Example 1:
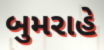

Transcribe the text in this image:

બુમરાહે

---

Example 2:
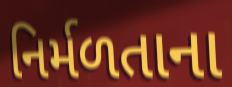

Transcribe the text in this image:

નિર્મળતાના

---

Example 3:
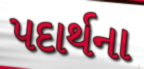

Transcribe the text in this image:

પદાર્થના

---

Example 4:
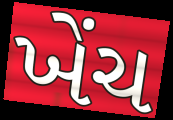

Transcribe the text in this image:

ખેંચ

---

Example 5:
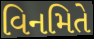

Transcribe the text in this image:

વિનમિતે